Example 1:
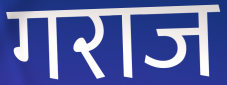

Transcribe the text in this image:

गराज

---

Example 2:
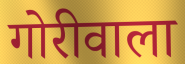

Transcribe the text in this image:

गोरीवाला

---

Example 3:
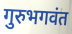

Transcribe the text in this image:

गुरुभगवंत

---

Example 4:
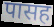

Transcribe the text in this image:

पासह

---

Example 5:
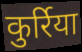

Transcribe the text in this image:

कुर्रिया